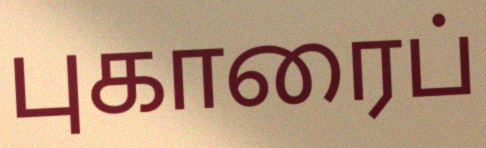
புகாரைப்